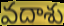
వదాశు